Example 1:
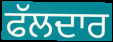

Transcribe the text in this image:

ਫੱਲਦਾਰ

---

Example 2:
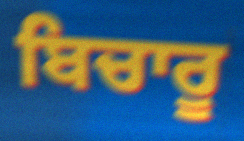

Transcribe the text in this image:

ਬਿਚਾਰੂ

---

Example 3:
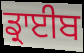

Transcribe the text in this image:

ਡ੍ਰਾਈਬ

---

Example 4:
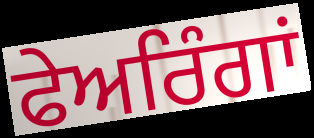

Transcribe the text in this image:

ਫੇਅਰਿੰਗਾਂ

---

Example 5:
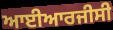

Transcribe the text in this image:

ਆਈਆਰਜੀਸੀ